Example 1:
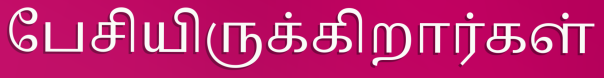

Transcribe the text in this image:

பேசியிருக்கிறார்கள்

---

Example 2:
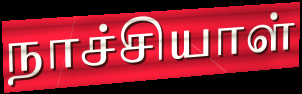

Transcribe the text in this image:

நாச்சியாள்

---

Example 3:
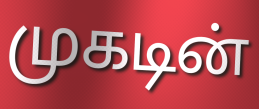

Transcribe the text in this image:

முகடின்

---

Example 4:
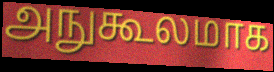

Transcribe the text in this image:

அநுகூலமாக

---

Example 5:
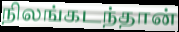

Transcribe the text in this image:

நிலங்கடந்தான்